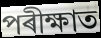
পৰীক্ষাত